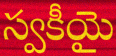
స్వకీయై